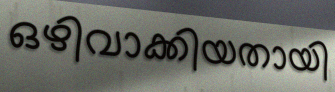
ഒഴിവാക്കിയതായി